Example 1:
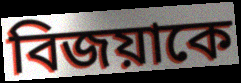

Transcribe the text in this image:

বিজয়াকে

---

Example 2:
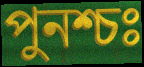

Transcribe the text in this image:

পুনশ্চঃ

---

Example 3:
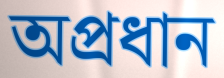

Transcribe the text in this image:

অপ্রধান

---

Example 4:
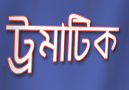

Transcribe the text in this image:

ট্রমাটিক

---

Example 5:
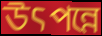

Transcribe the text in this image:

উৎপন্নে